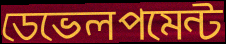
ডেভেলপমেন্ট